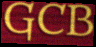
GCB